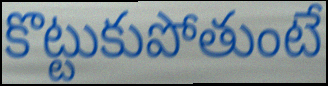
కొట్టుకుపోతుంటే